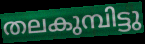
തലകുമ്പിട്ടു